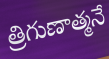
త్రిగుణాత్మనే